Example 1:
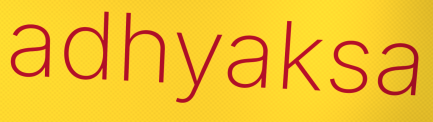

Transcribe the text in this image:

adhyaksa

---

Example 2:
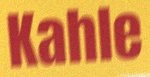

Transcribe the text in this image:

Kahle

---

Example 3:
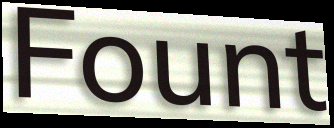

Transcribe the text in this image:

Fount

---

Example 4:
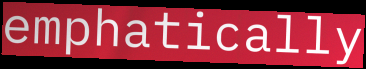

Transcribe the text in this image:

emphatically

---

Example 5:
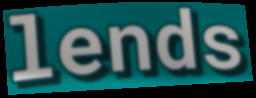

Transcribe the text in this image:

lends